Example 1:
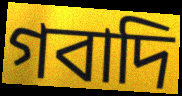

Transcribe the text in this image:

গবাদি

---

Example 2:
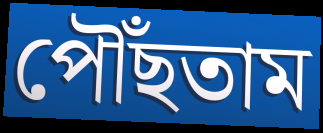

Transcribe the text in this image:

পৌঁছতাম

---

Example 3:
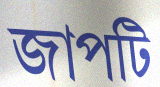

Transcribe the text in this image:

জাপটি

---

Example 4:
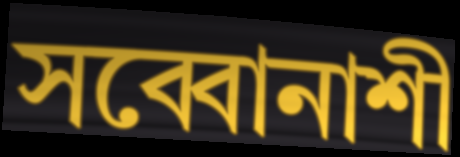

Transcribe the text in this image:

সব্বোনাশী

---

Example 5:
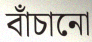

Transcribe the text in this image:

বাঁচানো